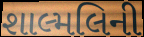
શાલ્મલિની